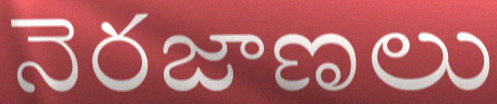
నెరజాణలు